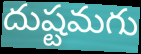
దుష్టమగు